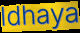
Idhaya